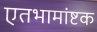
एतभामांष्टक